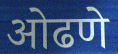
ओढणे